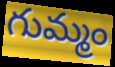
గుమ్మం